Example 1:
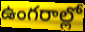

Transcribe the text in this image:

ఉంగరాల్లో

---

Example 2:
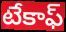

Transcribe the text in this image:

టేకాఫ్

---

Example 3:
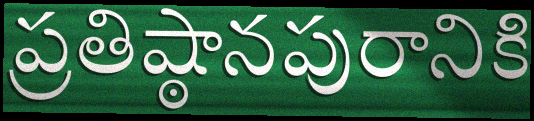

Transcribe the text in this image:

ప్రతిష్ఠానపురానికి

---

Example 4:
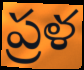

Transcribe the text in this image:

ప్రళ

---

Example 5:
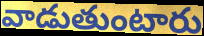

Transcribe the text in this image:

వాడుతుంటారు